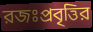
রজঃপ্রবৃত্তির